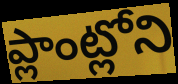
ప్లాంట్లోని